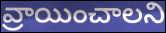
వ్రాయించాలని